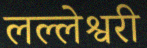
लल्लेश्वरी